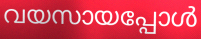
വയസായപ്പോൾ